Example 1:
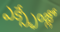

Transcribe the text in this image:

ఎక్స్ఛేంజ్లో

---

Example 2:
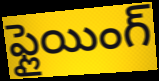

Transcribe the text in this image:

ఫ్లైయింగ్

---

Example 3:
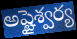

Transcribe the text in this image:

అష్టైశ్వర్య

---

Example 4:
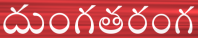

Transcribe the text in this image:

దుంగతరంగ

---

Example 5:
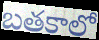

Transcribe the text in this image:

బతకాలో